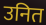
उनित